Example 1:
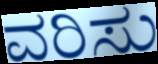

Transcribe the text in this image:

ವರಿಸು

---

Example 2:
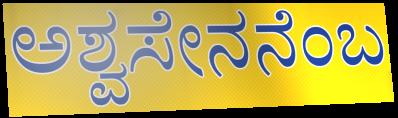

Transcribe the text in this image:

ಅಶ್ವಸೇನನೆಂಬ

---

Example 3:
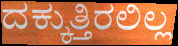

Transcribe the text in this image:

ದಕ್ಕುತ್ತಿರಲಿಲ್ಲ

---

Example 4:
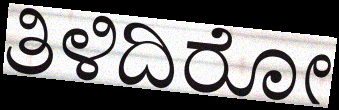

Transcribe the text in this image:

ತಿಳಿದಿರೋ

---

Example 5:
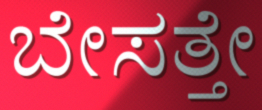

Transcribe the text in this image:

ಬೇಸತ್ತೇ